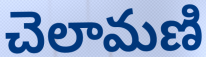
చెలామణి